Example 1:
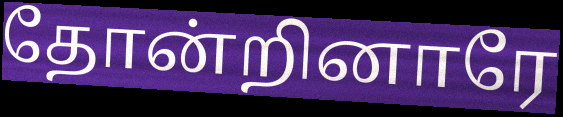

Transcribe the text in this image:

தோன்றினாரே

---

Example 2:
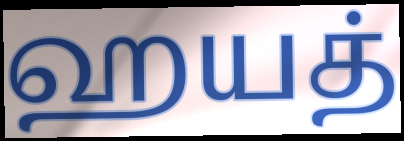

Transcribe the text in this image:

ஹயத்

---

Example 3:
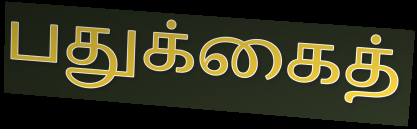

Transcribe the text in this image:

பதுக்கைத்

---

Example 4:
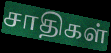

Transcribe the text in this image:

சாதிகள்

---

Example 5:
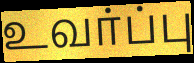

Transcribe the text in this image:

உவர்ப்பு